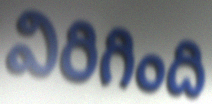
విరిగింది